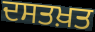
ਦਸਤਖ਼ਤ